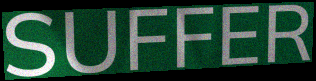
SUFFER